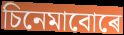
চিনেমাবোৰে